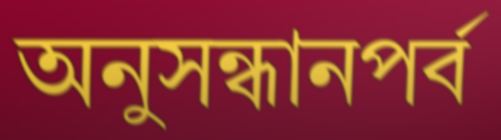
অনুসন্ধানপর্ব